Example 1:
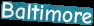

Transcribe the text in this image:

Baltimore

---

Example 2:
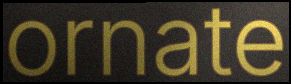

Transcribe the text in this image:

ornate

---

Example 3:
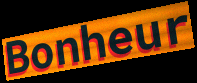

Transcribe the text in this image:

Bonheur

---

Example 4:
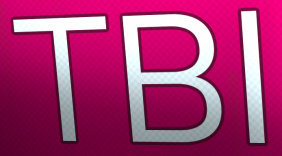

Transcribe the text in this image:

TBI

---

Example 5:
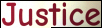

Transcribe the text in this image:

Justice